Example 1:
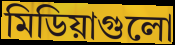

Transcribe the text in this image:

মিডিয়াগুলো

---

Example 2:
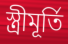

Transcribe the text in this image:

স্ত্রীমূর্তি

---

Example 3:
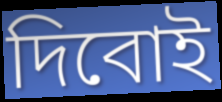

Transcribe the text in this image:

দিবোই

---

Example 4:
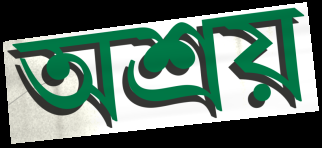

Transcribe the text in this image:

অশ্রয়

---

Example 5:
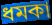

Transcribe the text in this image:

ধমকা